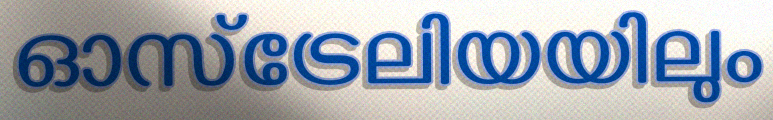
ഓസ്ട്രേലിയയിലും